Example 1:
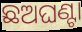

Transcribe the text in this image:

ଛଅଘଣ୍ଟା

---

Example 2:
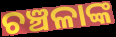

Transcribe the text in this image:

ଚଞ୍ଚଳାଙ୍କ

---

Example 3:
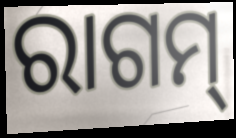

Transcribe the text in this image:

ରାଗମ୍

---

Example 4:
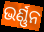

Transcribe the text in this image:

ଭର୍ଣ୍ଣନ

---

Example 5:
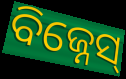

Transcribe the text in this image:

ବିଜ୍ନେସ୍